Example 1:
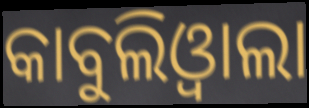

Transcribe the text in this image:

କାବୁଲିଓ୍ୱାଲା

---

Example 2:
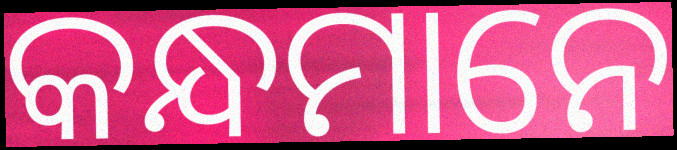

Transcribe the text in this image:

କନ୍ଧମାନେ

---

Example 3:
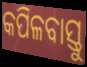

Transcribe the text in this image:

କପିଳବାସ୍ତୁ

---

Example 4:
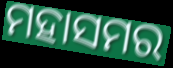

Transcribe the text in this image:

ମହାସମର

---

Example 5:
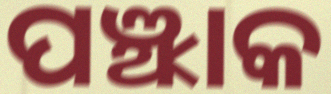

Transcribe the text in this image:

ପଞ୍ଝାକ